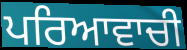
ਪਰਿਆਵਾਚੀ